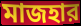
মাজহার